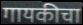
गायकीचा